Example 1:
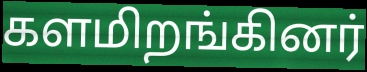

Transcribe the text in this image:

களமிறங்கினர்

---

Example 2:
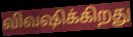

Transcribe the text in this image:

விவஷிக்கிறது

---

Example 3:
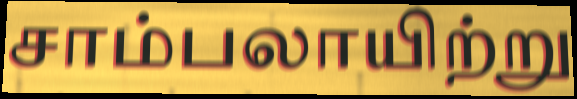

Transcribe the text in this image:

சாம்பலாயிற்று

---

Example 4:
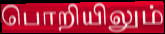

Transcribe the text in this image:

பொறியிலும்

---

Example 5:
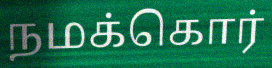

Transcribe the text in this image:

நமக்கொர்